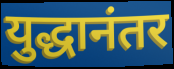
युद्धानंतर